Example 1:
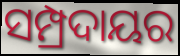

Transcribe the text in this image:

ସମ୍ପ୍ରଦାୟର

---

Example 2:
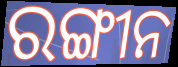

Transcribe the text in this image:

ରଙ୍ଗୀନ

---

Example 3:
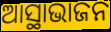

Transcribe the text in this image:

ଆସ୍ଥାଭାଜନ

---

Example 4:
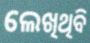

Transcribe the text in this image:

ଲେଖିଥିବି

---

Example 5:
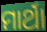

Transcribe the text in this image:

ମାର୍ଥା